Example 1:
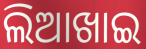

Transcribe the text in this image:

ଲିଆଖାଇ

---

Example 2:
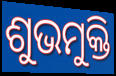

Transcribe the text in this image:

ଶୁଭମୁକ୍ତି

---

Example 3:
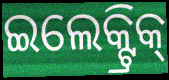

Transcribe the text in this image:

ଇଲେକ୍ଟ୍ରିକ୍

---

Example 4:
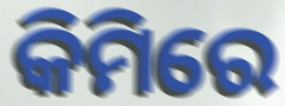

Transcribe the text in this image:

କିମିରେ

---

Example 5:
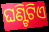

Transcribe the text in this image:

ଘଣ୍ଟିଟିଏ